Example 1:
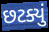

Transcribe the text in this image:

છટક્યું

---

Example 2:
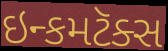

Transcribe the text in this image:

ઇન્કમટૅક્સ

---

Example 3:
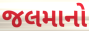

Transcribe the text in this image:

જલમાનો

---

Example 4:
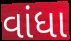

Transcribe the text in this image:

વાંધા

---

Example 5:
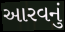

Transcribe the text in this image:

આરવનું